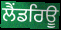
ਲੈਂਡਰਿਊ